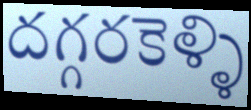
దగ్గరకెళ్ళి